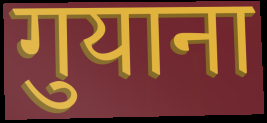
गुयाना